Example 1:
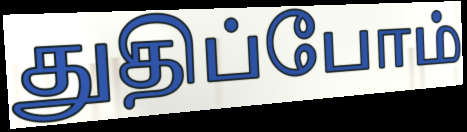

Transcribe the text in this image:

துதிப்போம்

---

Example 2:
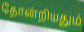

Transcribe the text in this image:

தோன்றியதும்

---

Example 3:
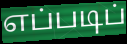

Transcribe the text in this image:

எப்படிப்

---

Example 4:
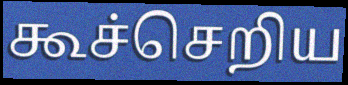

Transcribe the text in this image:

கூச்செறிய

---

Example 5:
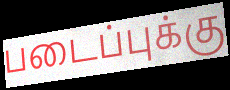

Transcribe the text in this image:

படைப்புக்கு